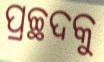
ପ୍ରଚ୍ଛଦକୁ